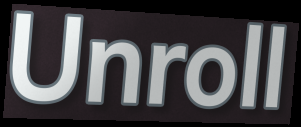
Unroll